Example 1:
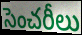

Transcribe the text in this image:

సెంచరీలు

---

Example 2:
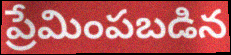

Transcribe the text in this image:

ప్రేమింపబడిన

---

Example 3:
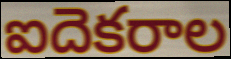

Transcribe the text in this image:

ఐదెకరాల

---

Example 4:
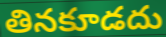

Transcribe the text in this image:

తినకూడదు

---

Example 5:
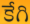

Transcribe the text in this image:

కేగి